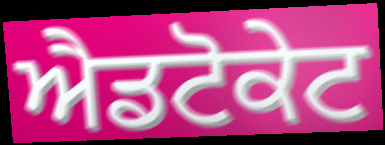
ਐਡਟੋਕੇਟ